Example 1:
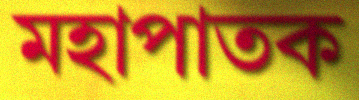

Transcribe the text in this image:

মহাপাতক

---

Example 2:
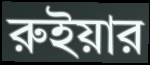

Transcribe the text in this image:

রুইয়ার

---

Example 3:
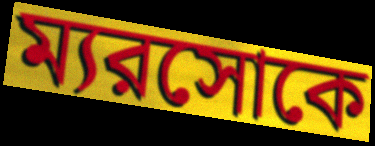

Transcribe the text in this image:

ম্যরসোকে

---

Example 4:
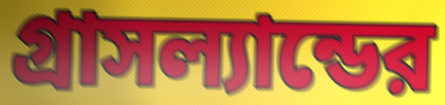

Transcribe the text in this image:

গ্রাসল্যান্ডের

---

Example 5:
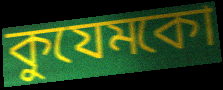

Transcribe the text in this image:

কুযেমকো